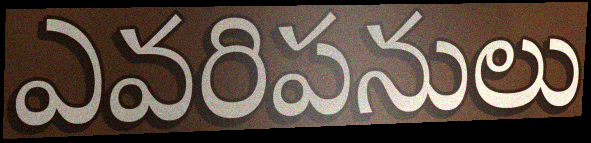
ఎవరిపనులు